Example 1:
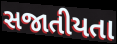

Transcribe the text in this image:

સજાતીયતા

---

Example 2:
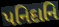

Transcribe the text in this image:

પનિદાનિ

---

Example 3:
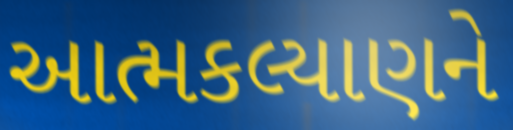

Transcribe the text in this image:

આત્મકલ્યાણને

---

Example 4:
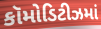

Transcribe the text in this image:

કૉમોડિટીઝમાં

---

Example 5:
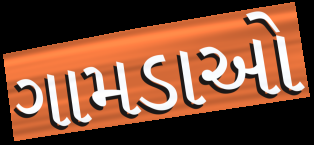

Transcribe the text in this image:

ગામડાઓ